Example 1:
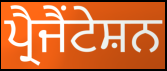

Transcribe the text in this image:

ਪ੍ਰੈਜੈਂਟੇਸ਼ਨ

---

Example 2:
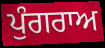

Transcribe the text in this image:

ਪੁੰਗਰਾਅ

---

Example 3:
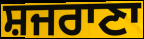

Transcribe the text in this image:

ਸ਼ਜਰਾਣਾ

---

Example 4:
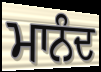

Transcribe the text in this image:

ਮਾਨੰਦ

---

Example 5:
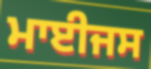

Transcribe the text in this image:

ਮਾਈਜਸ